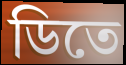
ডিতে